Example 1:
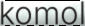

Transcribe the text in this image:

komol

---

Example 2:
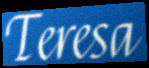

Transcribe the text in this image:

Teresa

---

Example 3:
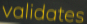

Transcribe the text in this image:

validates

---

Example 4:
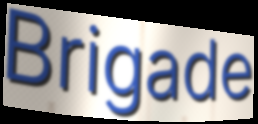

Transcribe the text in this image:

Brigade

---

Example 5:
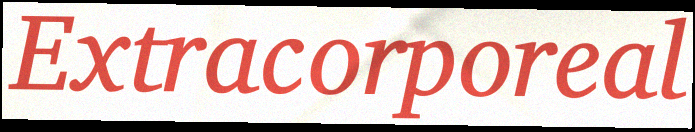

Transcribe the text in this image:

Extracorporeal